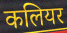
कलियर